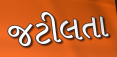
જટીલતા